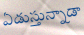
ఏడుస్తున్నాడా